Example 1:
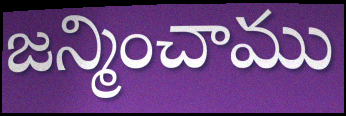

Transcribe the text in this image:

జన్మించాము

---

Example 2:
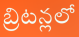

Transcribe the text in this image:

బ్రిటన్లలో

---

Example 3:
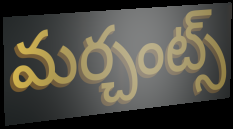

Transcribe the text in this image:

మర్చంట్స్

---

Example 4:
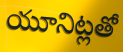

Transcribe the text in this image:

యూనిట్లతో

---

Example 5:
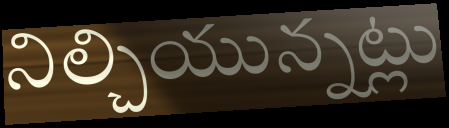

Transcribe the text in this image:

నిల్చియున్నట్లు